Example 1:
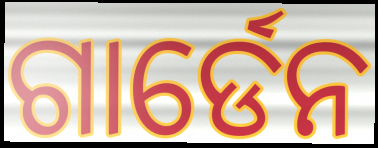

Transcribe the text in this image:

ଗାର୍ଡେନ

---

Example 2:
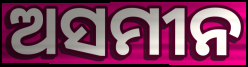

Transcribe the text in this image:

ଅସମୀନ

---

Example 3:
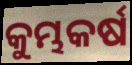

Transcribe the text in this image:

କୁମ୍ଭକର୍ଷ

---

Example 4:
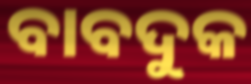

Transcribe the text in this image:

ବାବଦୁକ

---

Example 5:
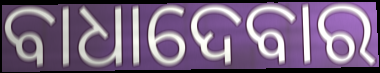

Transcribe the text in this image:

ବାଧାଦେବାର